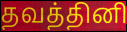
தவத்தினி